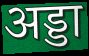
अड्डा